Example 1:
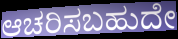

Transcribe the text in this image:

ಆಚರಿಸಬಹುದೇ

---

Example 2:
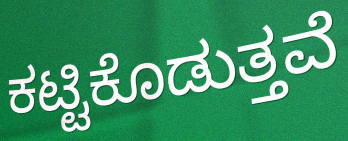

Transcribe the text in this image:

ಕಟ್ಟಿಕೊಡುತ್ತವೆ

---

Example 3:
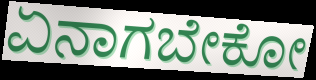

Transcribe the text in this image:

ಏನಾಗಬೇಕೋ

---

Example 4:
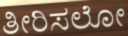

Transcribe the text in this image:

ತೀರಿಸಲೋ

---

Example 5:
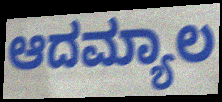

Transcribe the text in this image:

ಆದಮ್ಯಾಲ